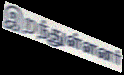
இறந்துள்ளனர்